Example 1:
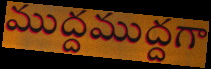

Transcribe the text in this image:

ముద్దముద్దగా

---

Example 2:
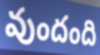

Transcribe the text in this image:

వుందంది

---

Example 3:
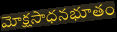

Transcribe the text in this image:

మోక్షసాధనభూతం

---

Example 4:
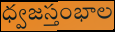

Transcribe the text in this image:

ధ్వజస్తంభాల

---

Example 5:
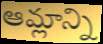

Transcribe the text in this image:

ఆమ్లాన్ని